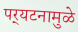
पर्यटनामुळे